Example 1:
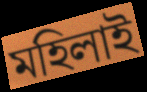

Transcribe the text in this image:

মহিলাই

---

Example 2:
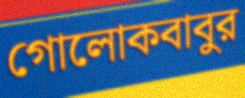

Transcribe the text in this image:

গোলোকবাবুর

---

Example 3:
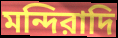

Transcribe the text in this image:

মন্দিরাদি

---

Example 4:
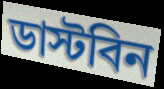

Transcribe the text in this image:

ডাস্টবিন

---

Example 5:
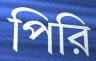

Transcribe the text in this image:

পিরি